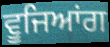
ਵੂਜਿਆਂਗ